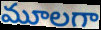
మూలగా